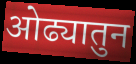
ओढ्यातुन